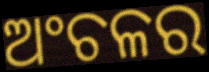
ଅଂଚଳର